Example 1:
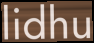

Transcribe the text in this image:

lidhu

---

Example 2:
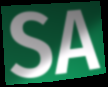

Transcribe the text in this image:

SA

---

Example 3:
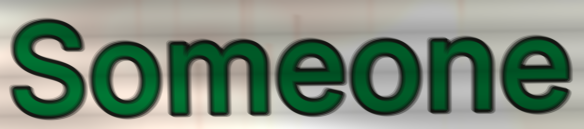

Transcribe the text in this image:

Someone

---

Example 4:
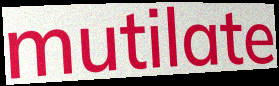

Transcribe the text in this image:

mutilate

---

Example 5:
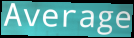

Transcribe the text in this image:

Average